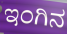
ಇಂಗಿನ